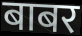
बाबर